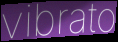
vibrato